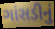
ગાંસડીનું